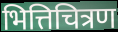
भित्तिचित्रण